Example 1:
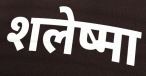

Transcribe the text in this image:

शलेष्मा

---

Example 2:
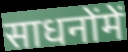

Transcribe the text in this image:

साधनोंमें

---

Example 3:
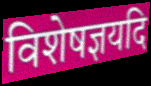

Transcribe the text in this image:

विशेषज्ञयदि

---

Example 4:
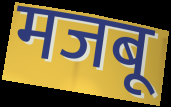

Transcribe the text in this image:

मजबू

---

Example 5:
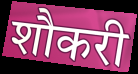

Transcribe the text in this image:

शौकरी